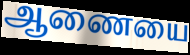
ஆணையை